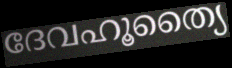
ദേവഹൂത്യൈ